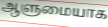
ஆளுமையாக